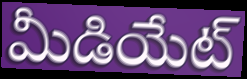
మీడియేట్